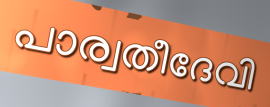
പാര്വതീദേവി